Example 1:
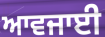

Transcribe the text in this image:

ਆਵਜਾਈ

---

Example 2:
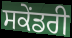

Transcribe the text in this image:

ਸਕੇਂਡਰੀ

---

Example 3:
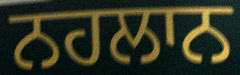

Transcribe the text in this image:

ਨਹਲਾਨ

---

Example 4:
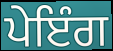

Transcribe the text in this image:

ਪੇਇੰਗ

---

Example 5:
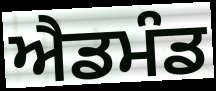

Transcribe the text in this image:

ਐਡਮੰਡ